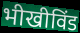
भीखीविंड